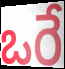
ఒరే